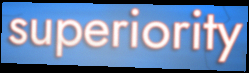
superiority